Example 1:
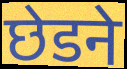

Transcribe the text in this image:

छेडने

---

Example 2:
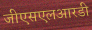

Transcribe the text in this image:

जीएसएलआरडी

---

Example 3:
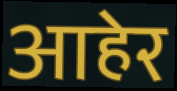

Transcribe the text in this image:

आहेर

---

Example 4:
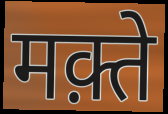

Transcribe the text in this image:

मक़्ते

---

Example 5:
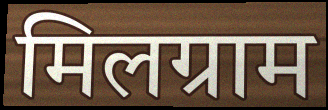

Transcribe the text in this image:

मिलग्राम